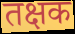
तक्षक